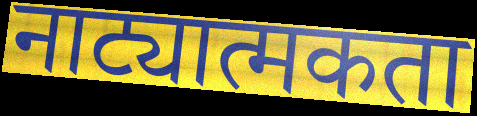
नाट्यात्मकता